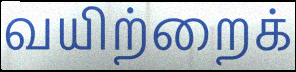
வயிற்றைக்